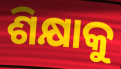
ଶିକ୍ଷାକୁ